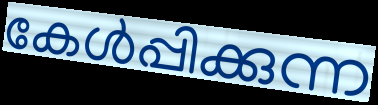
കേൾപ്പിക്കുന്ന